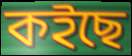
কইছে